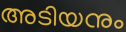
അടിയനും